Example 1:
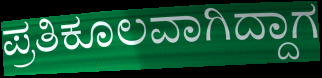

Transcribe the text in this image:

ಪ್ರತಿಕೂಲವಾಗಿದ್ದಾಗ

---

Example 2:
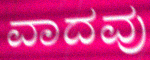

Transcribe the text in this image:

ವಾದವು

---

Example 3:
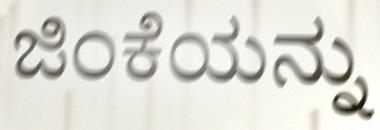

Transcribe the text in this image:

ಜಿಂಕೆಯನ್ನು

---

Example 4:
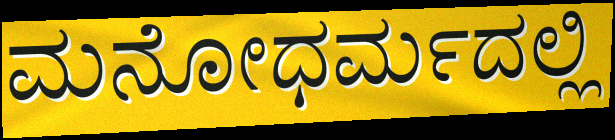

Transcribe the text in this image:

ಮನೋಧರ್ಮದಲ್ಲಿ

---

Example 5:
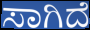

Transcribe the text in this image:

ಸಾಗಿದೆ